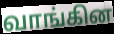
வாங்கின